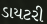
ડાયટરી